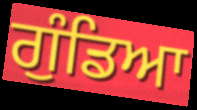
ਗੁੰਡਿਆ